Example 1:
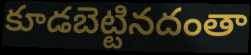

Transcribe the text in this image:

కూడబెట్టినదంతా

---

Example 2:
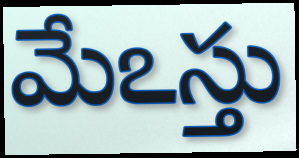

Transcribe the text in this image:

మేఽస్తు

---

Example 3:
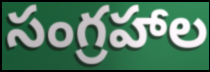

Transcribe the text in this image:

సంగ్రహాల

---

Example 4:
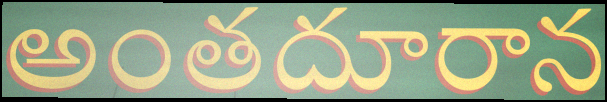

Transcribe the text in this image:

అంతదూరాన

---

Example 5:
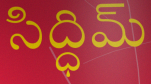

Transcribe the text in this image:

సిద్ధిమ్